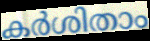
കർശിതാം